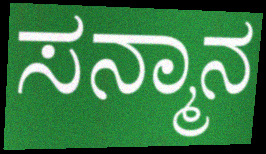
ಸನ್ಮಾನ